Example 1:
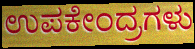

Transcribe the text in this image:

ಉಪಕೇಂದ್ರಗಳು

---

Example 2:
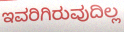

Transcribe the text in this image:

ಇವರಿಗಿರುವುದಿಲ್ಲ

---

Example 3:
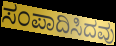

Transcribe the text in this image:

ಸಂಪಾದಿಸಿದವು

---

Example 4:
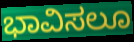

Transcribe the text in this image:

ಭಾವಿಸಲೂ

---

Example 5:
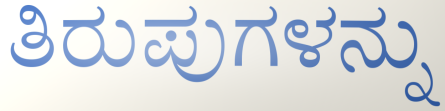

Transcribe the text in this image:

ತಿರುಪುಗಳನ್ನು